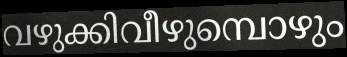
വഴുക്കിവീഴുമ്പൊഴും